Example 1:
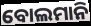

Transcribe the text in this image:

ବୋଲମାନି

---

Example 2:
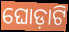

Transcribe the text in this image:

ଘୋଡ଼ାଟି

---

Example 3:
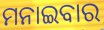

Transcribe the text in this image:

ମନାଇବାର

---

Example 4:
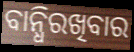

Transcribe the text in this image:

ବାନ୍ଧିରଖିବାର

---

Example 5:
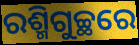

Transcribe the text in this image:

ରଶ୍ମିଗୁଚ୍ଛରେ